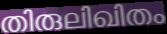
തിരുലിഖിതം